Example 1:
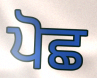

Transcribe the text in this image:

ਪੋਛ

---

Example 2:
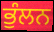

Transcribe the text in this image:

ਭੁੰਲਨ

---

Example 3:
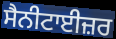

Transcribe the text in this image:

ਸੈਨੀਟਾਈਜ਼ਰ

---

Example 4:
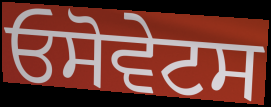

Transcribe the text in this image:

ਓਸੋਵੇਟਸ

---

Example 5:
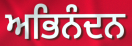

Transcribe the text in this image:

ਅਭਿਨੰਦਨ